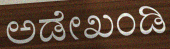
ಅಡೇಖಂಡಿ